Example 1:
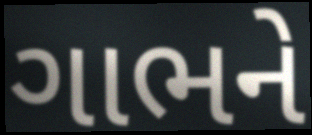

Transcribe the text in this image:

ગાભને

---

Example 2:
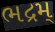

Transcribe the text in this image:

ભદ્રમ્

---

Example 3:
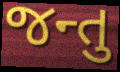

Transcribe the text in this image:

જન્તુ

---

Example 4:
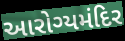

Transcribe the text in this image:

આરોગ્યમંદિર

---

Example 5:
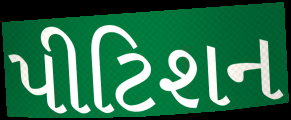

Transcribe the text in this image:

પીટિશન